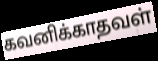
கவனிக்காதவள்